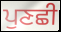
ਪੁਣਛੀ